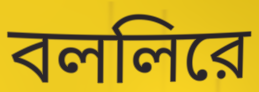
বললিরে